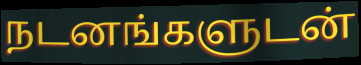
நடனங்களுடன்